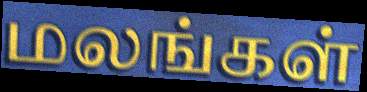
மலங்கள்